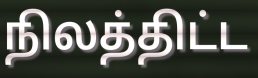
நிலத்திட்ட